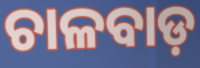
ଚାଳବାଡ଼